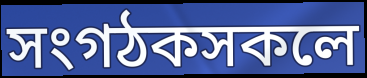
সংগঠকসকলে